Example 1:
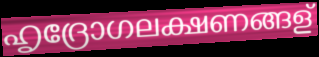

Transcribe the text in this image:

ഹൃദ്രോഗലക്ഷണങ്ങള്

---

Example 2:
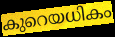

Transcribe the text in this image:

കുറെയധികം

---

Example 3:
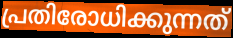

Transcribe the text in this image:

പ്രതിരോധിക്കുന്നത്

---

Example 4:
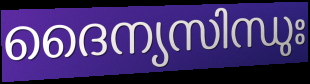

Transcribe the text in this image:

ദൈന്യസിന്ധുഃ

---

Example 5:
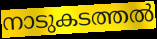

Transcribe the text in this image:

നാടുകടത്തൽ